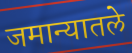
जमान्यातले